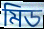
মিড